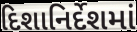
દિશાનિર્દેશમાં